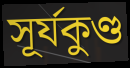
সূর্যকুণ্ড